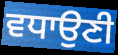
ਵਧਾਉਣੀ